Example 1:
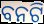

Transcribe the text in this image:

ବନଟି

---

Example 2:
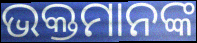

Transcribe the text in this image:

ଭକ୍ତମାନଙ୍କ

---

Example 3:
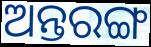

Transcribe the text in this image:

ଅନ୍ତରଙ୍ଗ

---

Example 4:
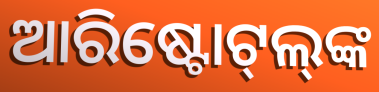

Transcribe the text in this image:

ଆରିଷ୍ଟୋଟ୍‌ଲ୍‌ଙ୍କ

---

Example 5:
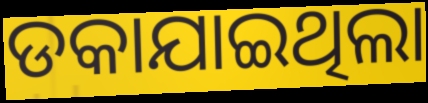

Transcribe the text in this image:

ଡକାଯାଇଥିଲା